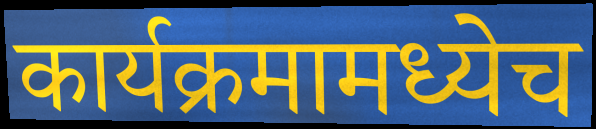
कार्यक्रमामध्येच